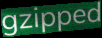
gzipped